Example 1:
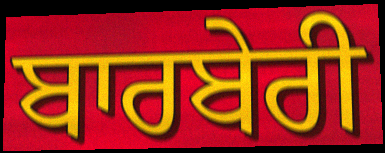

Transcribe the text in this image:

ਬਾਰਬੇਰੀ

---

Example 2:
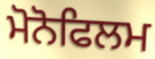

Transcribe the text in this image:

ਮੋਨੋਫਿਲਮ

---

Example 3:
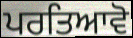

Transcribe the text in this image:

ਪਰਤਿਆਵੋ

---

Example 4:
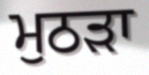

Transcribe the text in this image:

ਮੁਠੜਾ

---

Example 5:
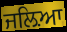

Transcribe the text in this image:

ਜਲ਼ਿਆ